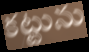
కట్టును